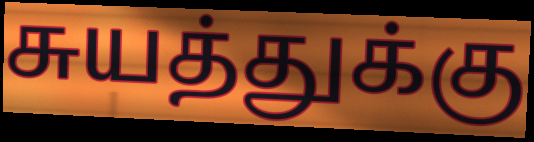
சுயத்துக்கு